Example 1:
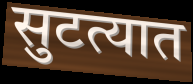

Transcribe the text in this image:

सुटत्यात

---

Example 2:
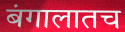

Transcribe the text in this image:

बंगालातच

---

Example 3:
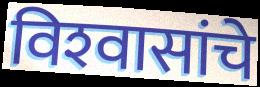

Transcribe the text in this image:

विश्‍वासांचे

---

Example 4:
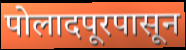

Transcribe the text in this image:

पोलादपूरपासून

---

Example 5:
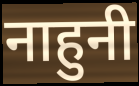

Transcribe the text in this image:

नाहुनी